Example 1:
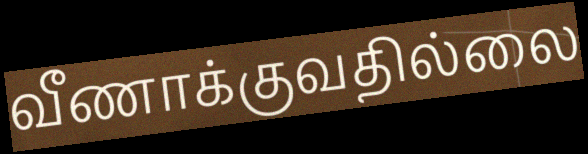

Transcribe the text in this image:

வீணாக்குவதில்லை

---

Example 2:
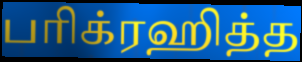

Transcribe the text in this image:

பரிக்ரஹித்த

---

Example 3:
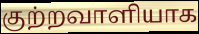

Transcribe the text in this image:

குற்றவாளியாக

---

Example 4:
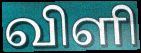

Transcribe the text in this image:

விளி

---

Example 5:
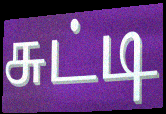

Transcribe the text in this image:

சுட்டி